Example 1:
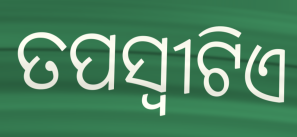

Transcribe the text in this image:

ତପସ୍ୱୀଟିଏ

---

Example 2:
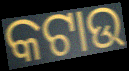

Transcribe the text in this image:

କଟାଉ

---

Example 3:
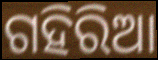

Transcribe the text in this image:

ଗହିରିଆ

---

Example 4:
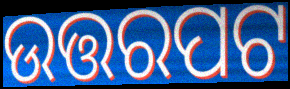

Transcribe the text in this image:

ଉତ୍ତରପଟ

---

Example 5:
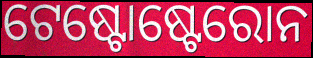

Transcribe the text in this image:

ଟେଷ୍ଟୋଷ୍ଟେରୋନ